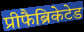
प्रीफैब्रिकेटेड